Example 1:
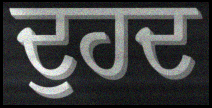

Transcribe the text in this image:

ਦੁਹਦ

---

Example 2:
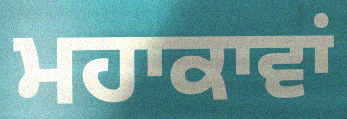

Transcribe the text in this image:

ਮਹਾਕਾਵਾਂ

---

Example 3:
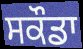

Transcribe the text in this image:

ਸਕੌਡਾ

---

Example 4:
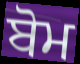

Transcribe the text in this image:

ਬੋਮ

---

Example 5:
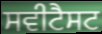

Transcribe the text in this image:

ਸਵੀਟੈਸਟ